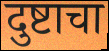
दुष्टाचा